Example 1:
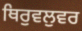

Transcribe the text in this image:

ਥਿਰੁਵਲੁਵਰ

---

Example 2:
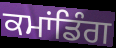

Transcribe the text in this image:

ਕਮਾਂਡਿੰਗ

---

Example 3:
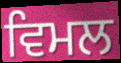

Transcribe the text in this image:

ਵਿਮਲ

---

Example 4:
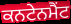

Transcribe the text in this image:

ਕਨਟੇਨਮੈਂਟ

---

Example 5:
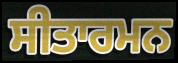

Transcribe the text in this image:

ਸੀਤਾਰਮਨ